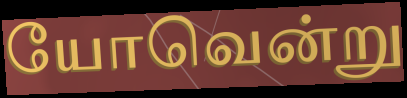
யோவென்று